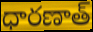
ధారణాత్